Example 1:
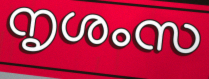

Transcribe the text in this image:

നൃശംസ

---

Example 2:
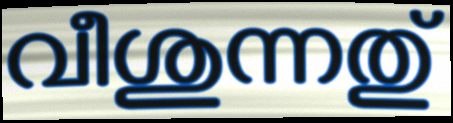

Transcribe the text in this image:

വീശുന്നതു്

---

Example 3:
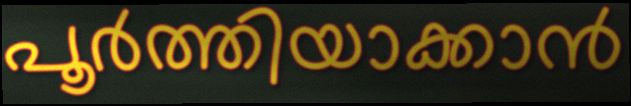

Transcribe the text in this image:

പൂർത്തിയാക്കാൻ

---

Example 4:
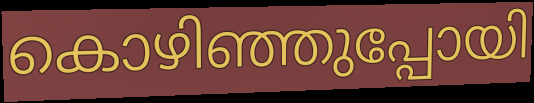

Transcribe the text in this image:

കൊഴിഞ്ഞുപ്പോയി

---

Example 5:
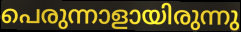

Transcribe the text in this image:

പെരുന്നാളായിരുന്നു